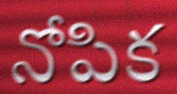
నోపిక